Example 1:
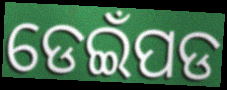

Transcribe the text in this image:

ଡେଇଁପଡ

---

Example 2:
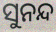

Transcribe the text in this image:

ସୁନନ୍ଦ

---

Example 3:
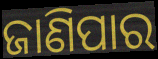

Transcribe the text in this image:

ଜାଣିପାର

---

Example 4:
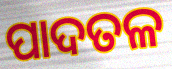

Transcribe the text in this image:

ପାଦତଳ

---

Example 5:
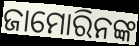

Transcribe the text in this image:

ଜାମୋରିନଙ୍କ